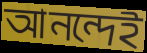
আনন্দেই